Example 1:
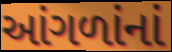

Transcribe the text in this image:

આંગળાંનાં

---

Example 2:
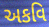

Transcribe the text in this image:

અકવિ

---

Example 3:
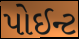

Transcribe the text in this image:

પોઈન્ટ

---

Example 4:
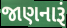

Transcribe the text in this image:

જાણનારૂં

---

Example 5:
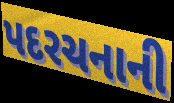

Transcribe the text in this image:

પદરચનાની